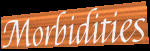
Morbidities